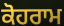
ਕੋਹਰਾਮ